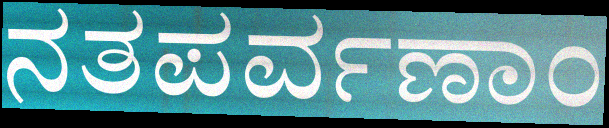
ನತಪರ್ವಣಾಂ